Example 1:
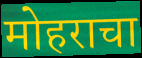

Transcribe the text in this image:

मोहराचा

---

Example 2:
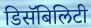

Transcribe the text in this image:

डिसॅबिलिटी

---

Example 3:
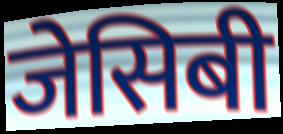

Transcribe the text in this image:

जेसिबी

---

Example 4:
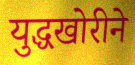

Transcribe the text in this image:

युद्धखोरीने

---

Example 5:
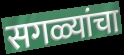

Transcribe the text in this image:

सगळ्यांचा